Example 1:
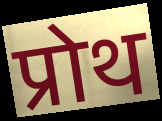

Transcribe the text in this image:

प्रोथ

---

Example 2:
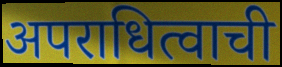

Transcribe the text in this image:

अपराधित्वाची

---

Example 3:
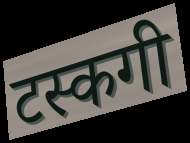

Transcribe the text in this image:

टस्कगी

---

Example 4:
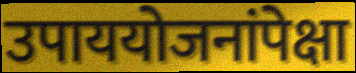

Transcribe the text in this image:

उपाययोजनांपेक्षा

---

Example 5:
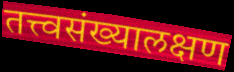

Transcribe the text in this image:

तत्त्वसंख्यालक्षण